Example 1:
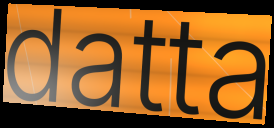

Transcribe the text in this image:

datta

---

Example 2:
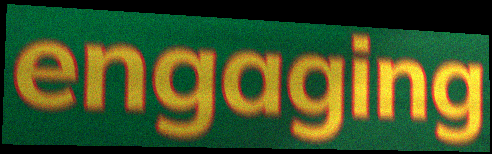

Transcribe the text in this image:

engaging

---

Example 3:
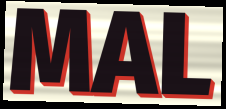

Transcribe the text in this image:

MAL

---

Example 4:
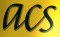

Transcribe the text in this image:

acs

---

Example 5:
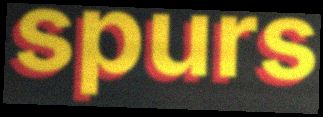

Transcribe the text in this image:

spurs